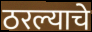
ठरल्याचे